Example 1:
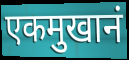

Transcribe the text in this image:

एकमुखानं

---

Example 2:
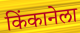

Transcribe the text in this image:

किंकानेला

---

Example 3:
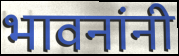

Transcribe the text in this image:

भावनांनी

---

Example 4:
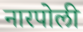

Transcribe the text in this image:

नारपोली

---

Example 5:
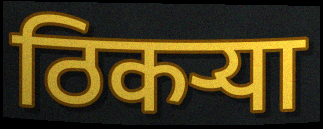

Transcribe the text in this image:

ठिकर्‍या